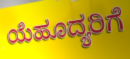
ಯೆಹೂದ್ಯರಿಗೆ